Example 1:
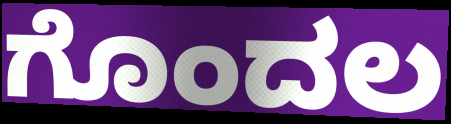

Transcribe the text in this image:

ಗೊಂದಲ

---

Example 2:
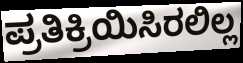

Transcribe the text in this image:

ಪ್ರತಿಕ್ರಿಯಿಸಿರಲಿಲ್ಲ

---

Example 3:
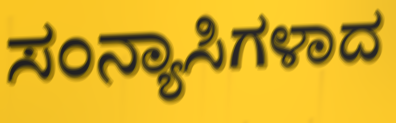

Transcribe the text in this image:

ಸಂನ್ಯಾಸಿಗಳಾದ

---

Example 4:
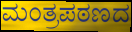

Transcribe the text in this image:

ಮಂತ್ರಪಠಣದ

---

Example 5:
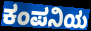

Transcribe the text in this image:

ಕಂಪನಿಯ